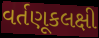
વર્તણૂકલક્ષી